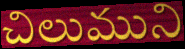
చిలుముని